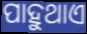
ପାହୁଥାଏ